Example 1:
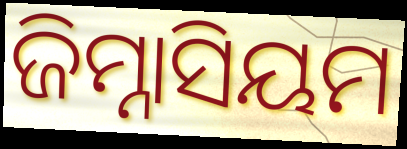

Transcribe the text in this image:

ଜିମ୍ନାସିୟମ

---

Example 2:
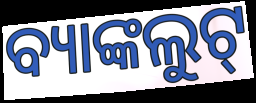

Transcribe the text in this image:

ବ୍ୟାଙ୍କଲୁଟ୍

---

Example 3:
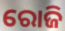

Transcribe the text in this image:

ରୋଜି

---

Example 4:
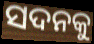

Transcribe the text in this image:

ସଦନକୁ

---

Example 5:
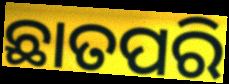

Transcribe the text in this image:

ଛାତପରି